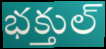
భక్తుల్